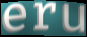
eru